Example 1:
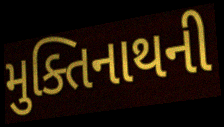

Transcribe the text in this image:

મુક્તિનાથની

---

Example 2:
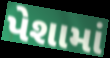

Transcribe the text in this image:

પેશામાં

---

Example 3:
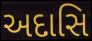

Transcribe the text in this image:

અદાસિ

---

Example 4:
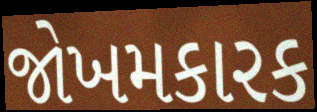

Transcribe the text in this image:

જોખમકારક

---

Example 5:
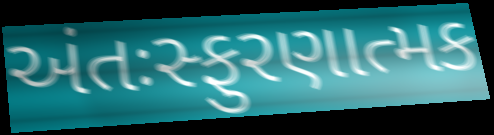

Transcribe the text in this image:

અંતઃસ્ફુરણાત્મક